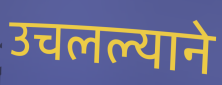
उचलल्याने